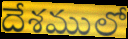
దేశములో